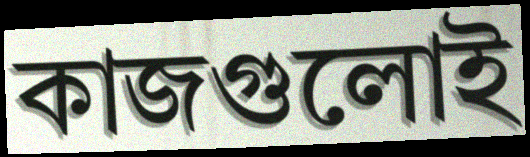
কাজগুলোই